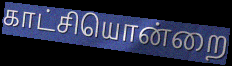
காட்சியொன்றை